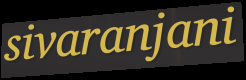
sivaranjani